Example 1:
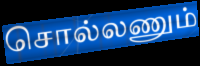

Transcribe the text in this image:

சொல்லணும்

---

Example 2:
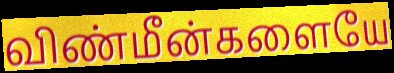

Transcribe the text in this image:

விண்மீன்களையே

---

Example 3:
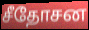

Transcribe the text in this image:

சீதோசன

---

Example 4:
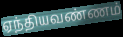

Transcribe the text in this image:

ஏந்தியவண்ணம்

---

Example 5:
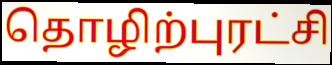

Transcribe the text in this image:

தொழிற்புரட்சி